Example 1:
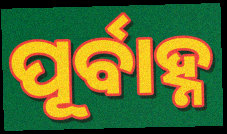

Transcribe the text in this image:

ପୂର୍ବାହ୍ନ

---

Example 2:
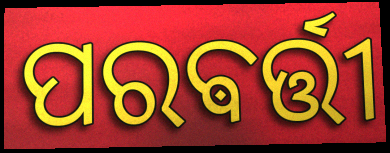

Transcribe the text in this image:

ପରଵର୍ତ୍ତୀ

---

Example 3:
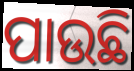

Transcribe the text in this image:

ପାଉଛି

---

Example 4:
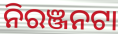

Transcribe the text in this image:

ନିରଞ୍ଜନଟା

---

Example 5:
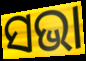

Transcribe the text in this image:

ସଭା